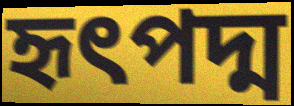
হৃৎপদ্ম